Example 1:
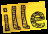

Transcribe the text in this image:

ille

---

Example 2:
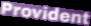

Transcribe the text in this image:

Provident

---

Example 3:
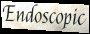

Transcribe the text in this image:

Endoscopic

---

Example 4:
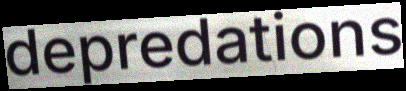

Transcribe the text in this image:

depredations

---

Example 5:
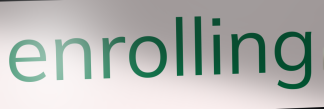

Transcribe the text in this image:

enrolling